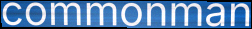
commonman